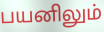
பயனிலும்